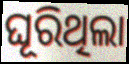
ଘୂରିଥିଲା